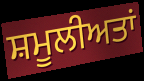
ਸ਼ਮੂਲੀਅਤਾਂ